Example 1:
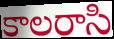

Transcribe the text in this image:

కాలరాసి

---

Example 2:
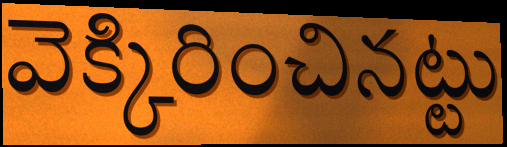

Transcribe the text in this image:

వెక్కిరించినట్టు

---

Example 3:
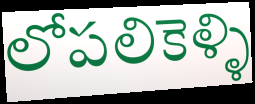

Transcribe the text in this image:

లోపలికెళ్ళి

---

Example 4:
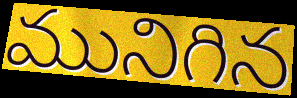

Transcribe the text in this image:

మునిగిన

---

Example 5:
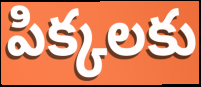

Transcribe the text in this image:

పిక్కలకు